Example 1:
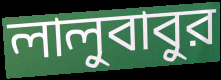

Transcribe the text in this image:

লালুবাবুর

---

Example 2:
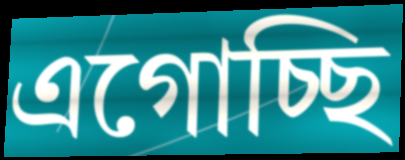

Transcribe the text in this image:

এগোচ্ছি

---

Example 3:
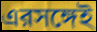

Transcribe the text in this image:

এরসঙ্গেই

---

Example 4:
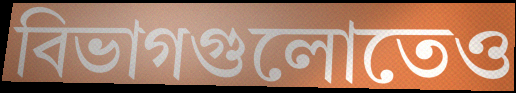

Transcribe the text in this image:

বিভাগগুলোতেও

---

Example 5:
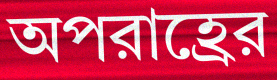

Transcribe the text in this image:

অপরাহ্রের